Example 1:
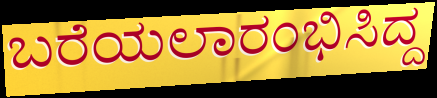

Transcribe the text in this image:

ಬರೆಯಲಾರಂಭಿಸಿದ್ದ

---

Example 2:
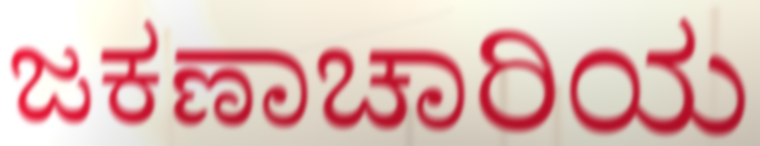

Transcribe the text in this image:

ಜಕಣಾಚಾರಿಯ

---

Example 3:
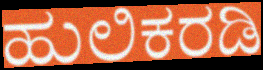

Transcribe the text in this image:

ಹುಲಿಕರಡಿ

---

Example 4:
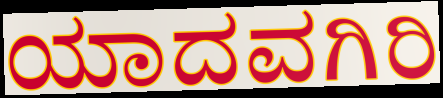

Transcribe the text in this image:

ಯಾದವಗಿರಿ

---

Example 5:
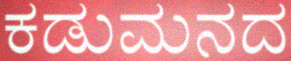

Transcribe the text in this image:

ಕಡುಮನದ